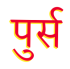
पुर्स